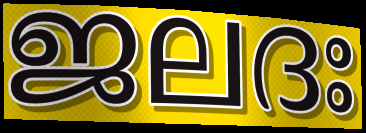
ജലദഃ